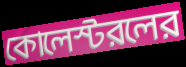
কোলেস্টরলের